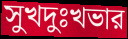
সুখদুঃখভার